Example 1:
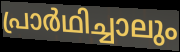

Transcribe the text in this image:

പ്രാർഥിച്ചാലും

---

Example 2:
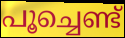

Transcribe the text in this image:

പൂച്ചെണ്ട്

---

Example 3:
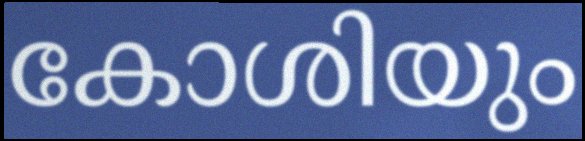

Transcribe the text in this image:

കോശിയും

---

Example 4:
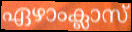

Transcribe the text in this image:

ഏഴാംക്ലാസ്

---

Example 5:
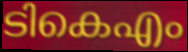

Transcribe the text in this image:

ടികെഎം